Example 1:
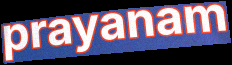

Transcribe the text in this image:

prayanam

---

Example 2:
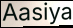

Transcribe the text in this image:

Aasiya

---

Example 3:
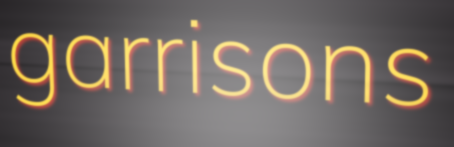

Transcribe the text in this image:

garrisons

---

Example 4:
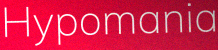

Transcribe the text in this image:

Hypomania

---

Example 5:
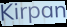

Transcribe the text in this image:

Kirpan